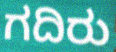
ಗದಿರು